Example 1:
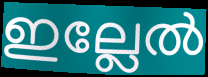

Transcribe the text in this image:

ഇല്ലേൽ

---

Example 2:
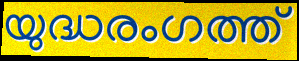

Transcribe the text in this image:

യുദ്ധരംഗത്ത്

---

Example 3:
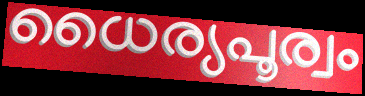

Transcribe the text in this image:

ധൈര്യപൂര്വം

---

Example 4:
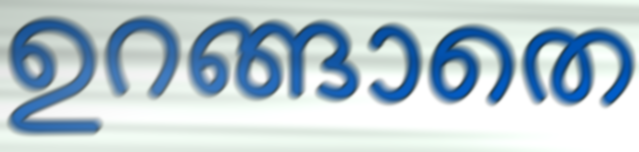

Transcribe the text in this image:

ഉറങ്ങാതെ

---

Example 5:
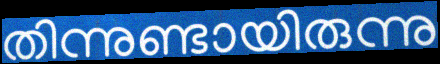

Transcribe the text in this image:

തിന്നുണ്ടായിരുന്നു